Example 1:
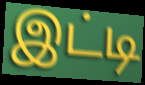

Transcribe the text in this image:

இட்டி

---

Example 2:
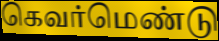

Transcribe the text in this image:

கெவர்மெண்டு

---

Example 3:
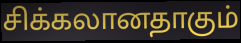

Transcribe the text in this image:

சிக்கலானதாகும்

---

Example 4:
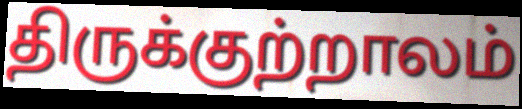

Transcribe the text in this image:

திருக்குற்றாலம்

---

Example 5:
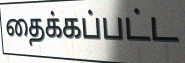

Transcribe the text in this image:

தைக்கப்பட்ட